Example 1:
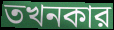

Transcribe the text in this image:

তখনকার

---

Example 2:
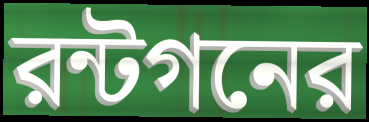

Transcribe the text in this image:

রন্টগনের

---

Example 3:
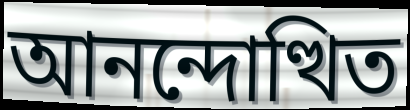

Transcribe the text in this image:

আনন্দোত্থিত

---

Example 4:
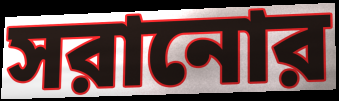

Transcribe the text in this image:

সরানোর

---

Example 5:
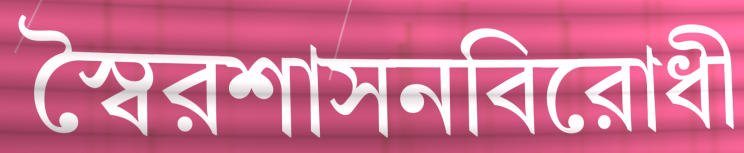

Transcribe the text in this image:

স্বৈরশাসনবিরোধী